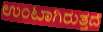
ಉಂಟಾಗಿರುತ್ತದೆ